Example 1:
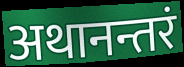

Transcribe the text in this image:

अथानन्तरं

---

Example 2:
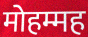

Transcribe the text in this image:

मोहम्मह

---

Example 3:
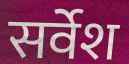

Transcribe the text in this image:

सर्वेश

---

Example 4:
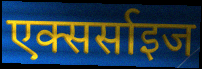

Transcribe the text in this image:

एक्सर्साइज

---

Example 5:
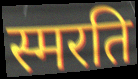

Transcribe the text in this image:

स्मरति